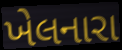
ખેલનારા